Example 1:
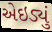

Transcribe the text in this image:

એઇડ્યું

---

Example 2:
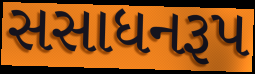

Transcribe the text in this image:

સસાધનરૂપ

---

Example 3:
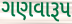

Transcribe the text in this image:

ગણવારૂપ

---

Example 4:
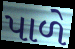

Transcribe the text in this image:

પાળે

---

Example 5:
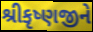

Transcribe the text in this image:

શ્રીકૃષ્ણજીને